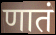
णातं